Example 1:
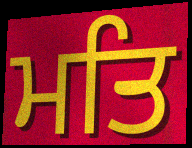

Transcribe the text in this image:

ਮਤਿ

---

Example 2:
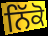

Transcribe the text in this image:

ਨਿੱਕੋ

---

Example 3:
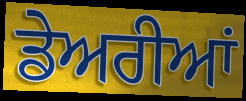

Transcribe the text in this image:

ਡੇਅਰੀਆਂ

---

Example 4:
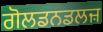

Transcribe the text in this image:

ਗੋਲਡਨਡਲਜ਼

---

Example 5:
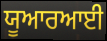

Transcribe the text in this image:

ਯੂਆਰਆਈ